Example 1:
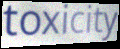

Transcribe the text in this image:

toxicity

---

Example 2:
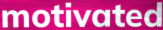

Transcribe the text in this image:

motivated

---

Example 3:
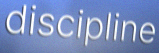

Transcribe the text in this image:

discipline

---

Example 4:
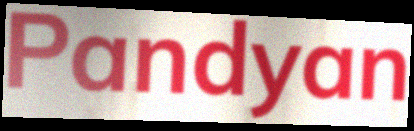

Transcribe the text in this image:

Pandyan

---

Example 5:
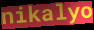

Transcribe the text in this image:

nikalyo